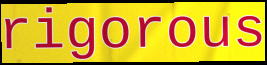
rigorous